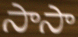
సాసా